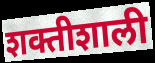
शक्तीशाली